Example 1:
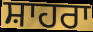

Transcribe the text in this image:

ਸ਼ਾਹਰਾ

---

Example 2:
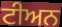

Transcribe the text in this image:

ਟੀਅਨ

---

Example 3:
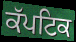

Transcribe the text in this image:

ਕੱਪਟਿਕ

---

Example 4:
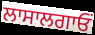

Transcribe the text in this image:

ਲਾਸਾਲਗਾਓਂ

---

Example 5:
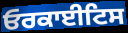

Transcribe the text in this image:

ਓਰਕਾਈਟਿਸ